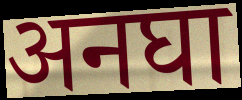
अनघा